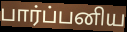
பார்ப்பனிய